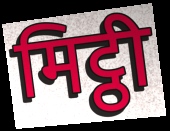
मिट्ठी